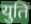
युति